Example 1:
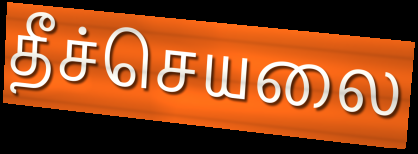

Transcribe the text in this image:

தீச்செயலை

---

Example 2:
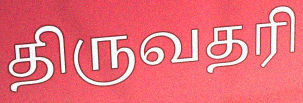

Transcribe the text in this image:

திருவதரி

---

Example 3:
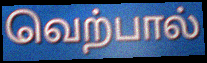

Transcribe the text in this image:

வெற்பால்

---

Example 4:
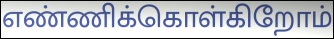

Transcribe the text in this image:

எண்ணிக்கொள்கிறோம்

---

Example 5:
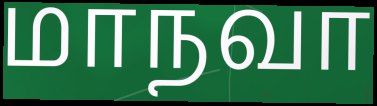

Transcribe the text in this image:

மாநவா